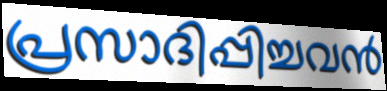
പ്രസാദിപ്പിച്ചവൻ